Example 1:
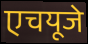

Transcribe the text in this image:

एचयूजे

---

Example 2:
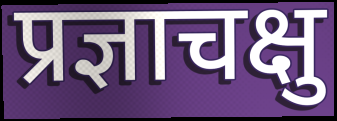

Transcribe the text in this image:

प्रज्ञाचक्षु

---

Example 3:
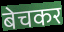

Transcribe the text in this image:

बेचकर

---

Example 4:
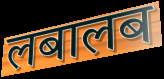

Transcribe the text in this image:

लबालब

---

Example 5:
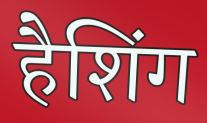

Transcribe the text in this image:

हैशिंग